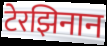
टेरझिनान